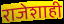
राजेशाही